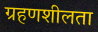
ग्रहणशीलता